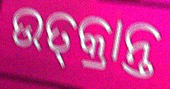
ଉତ୍‌କ୍ରାନ୍ତ